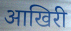
आखिरी